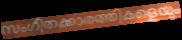
സംഗീതക്കാരത്തികളെയും